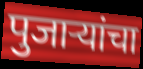
पुजाऱ्यांचा